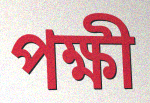
পক্ষী